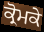
ਕ੍ਰੋਮਕੇ